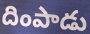
దింపాడు